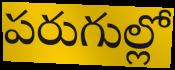
పరుగుల్లో